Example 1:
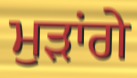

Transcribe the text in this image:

ਮੁੜਾਂਗੇ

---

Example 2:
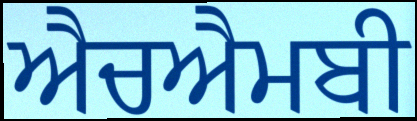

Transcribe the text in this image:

ਐਚਐਮਬੀ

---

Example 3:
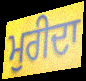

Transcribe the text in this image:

ਮੁਰੀਦਾ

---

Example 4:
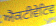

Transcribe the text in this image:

ਐਕਟੀਵੇਟਿਵ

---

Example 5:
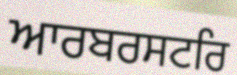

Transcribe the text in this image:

ਆਰਬਰਸਟਰਿ